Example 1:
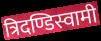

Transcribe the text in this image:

त्रिदण्डिस्वामी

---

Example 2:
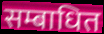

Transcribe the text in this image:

सम्बाधित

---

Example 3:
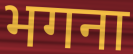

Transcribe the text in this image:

भगना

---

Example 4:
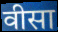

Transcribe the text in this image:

वीसा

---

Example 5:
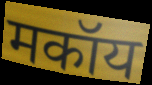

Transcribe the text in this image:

मकॉय